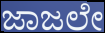
ಜಾಜಲೇ